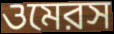
ওমেরস